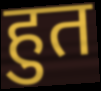
हुत